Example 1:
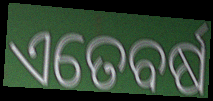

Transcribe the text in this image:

ଏତେବର୍ଷ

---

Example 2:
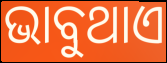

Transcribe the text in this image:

ଭାବୁଥାଏ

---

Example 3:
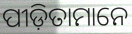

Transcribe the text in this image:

ପୀଡ଼ିତାମାନେ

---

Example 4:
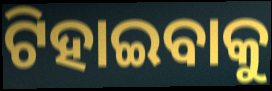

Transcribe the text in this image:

ଟିହାଇବାକୁ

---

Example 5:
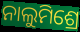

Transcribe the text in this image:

ନାଲୁମିଶ୍ରେ